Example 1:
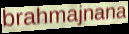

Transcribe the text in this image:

brahmajnana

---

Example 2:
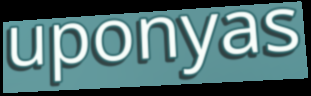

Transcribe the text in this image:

uponyas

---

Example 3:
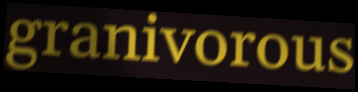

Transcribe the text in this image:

granivorous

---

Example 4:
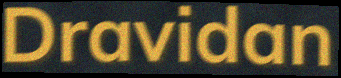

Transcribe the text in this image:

Dravidan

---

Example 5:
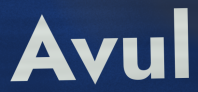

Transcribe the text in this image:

Avul